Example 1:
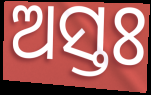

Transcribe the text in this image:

ଅସ୍ତଃ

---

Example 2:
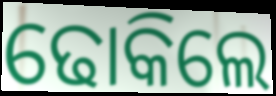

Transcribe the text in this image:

ଢୋକିଲେ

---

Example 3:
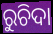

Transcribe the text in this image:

ରୁଚିଦା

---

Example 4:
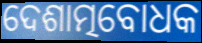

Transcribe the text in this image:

ଦେଶାତ୍ମବୋଧକ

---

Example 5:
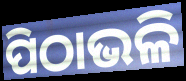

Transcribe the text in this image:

ପିଠାଭଳି